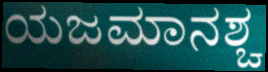
ಯಜಮಾನಶ್ಚ